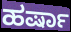
ಹರ್ಷಾ